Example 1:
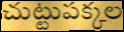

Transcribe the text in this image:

చుట్టుపక్కల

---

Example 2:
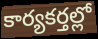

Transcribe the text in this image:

కార్యకర్తల్లో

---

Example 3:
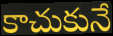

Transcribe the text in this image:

కాచుకునే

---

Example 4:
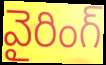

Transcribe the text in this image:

వైరింగ్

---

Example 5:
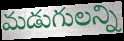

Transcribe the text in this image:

మడుగులన్ని